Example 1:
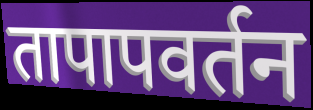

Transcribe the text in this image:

तापापवर्तन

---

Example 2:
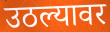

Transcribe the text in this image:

उठल्यावर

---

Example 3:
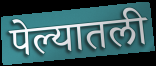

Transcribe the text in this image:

पेल्यातली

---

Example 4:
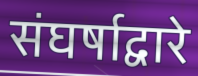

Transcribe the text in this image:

संघर्षाद्वारे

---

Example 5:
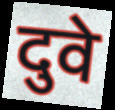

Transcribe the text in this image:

दुवे